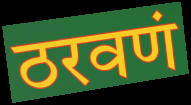
ठरवणं